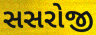
સસરોજી